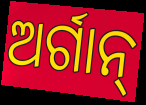
ଅର୍ଗାନ୍